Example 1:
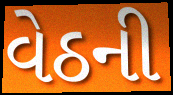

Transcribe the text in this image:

વેઠની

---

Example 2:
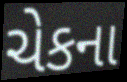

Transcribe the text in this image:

ચેકના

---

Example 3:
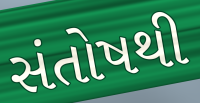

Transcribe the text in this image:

સંતોષથી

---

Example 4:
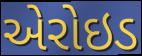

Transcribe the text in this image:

એરોઇડ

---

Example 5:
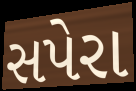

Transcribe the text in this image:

સપેરા